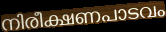
നിരീക്ഷണപാടവം